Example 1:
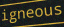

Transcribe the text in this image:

igneous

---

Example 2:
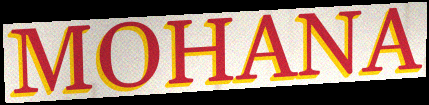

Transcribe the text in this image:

MOHANA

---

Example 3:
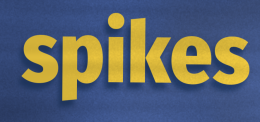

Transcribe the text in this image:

spikes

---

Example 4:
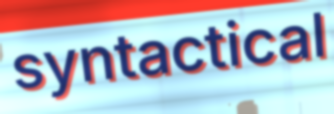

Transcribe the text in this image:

syntactical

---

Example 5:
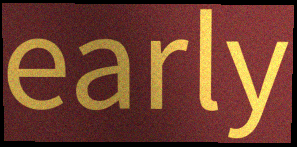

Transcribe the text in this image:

early